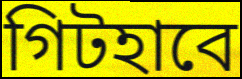
গিটহাবে